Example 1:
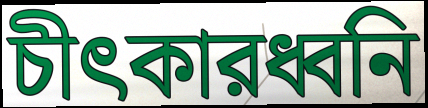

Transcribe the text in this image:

চীৎকারধ্বনি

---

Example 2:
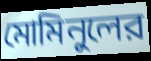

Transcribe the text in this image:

মোমিনুলের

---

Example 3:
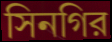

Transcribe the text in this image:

সিনগির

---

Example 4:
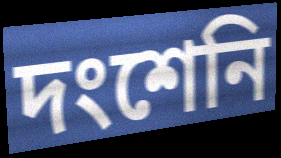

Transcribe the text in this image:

দংশেনি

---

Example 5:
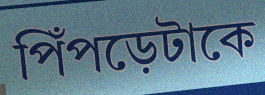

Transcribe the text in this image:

পিঁপড়েটাকে